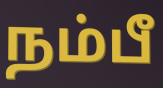
நம்பீ